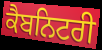
ਕੈਬਨਿਟਰੀ